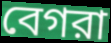
বেগরা